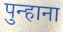
पुन्हाना